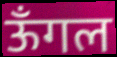
ऊँगल